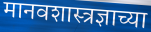
मानवशास्त्रज्ञाच्या